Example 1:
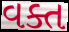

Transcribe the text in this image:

વક્ત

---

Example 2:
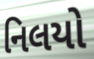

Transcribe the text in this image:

નિલયો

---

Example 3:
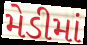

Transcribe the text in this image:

મેડીમાં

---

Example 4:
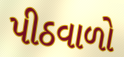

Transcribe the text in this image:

પીઠવાળો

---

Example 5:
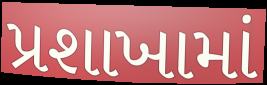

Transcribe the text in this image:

પ્રશાખામાં